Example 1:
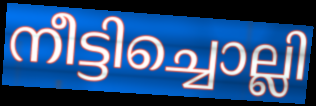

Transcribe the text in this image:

നീട്ടിച്ചൊല്ലി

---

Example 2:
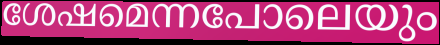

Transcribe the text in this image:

ശേഷമെന്നപോലെയും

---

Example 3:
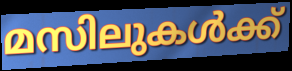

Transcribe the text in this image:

മസിലുകൾക്ക്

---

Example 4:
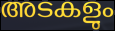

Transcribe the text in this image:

അടകളും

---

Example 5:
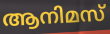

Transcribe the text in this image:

ആനിമസ്